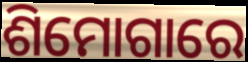
ଶିମୋଗାରେ